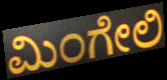
ಮಿಂಗೇಲಿ